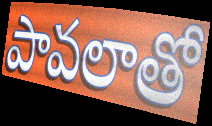
పావలాతో